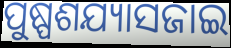
ପୁଷ୍ପଶଯ୍ୟାସଜାଇ